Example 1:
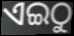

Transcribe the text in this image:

ଏଇଠୁ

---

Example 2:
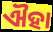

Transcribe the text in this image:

ଐହା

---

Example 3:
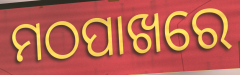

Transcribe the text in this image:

ମଠପାଖରେ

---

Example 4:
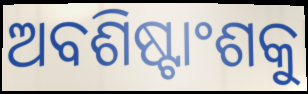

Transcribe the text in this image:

ଅବଶିଷ୍ଟାଂଶକୁ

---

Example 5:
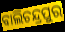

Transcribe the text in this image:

ବାଲିଚନ୍ଦ୍ରପୁର